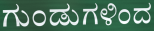
ಗುಂಡುಗಳಿಂದ